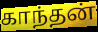
காந்தன்